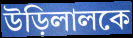
উড়িলালকে